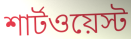
শার্টওয়েস্ট